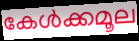
കേൾക്കമൂല